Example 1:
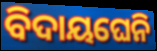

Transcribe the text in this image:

ବିଦାୟଘେନି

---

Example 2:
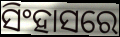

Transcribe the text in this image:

ସିଂହାସରେ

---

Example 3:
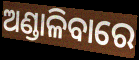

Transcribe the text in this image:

ଅଣ୍ଡାଳିବାରେ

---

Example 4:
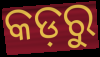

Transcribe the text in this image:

କଡ଼ରୁ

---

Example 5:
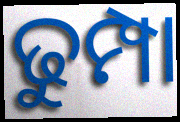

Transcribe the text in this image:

ଢୁମ୍ପା